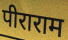
पीराराम